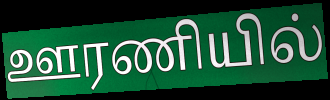
ஊரணியில்